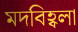
মদবিহ্বলা